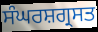
ਸੰਘਰਸ਼ਗ੍ਰਸਤ